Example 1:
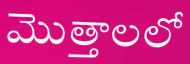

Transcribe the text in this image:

మొత్తాలలో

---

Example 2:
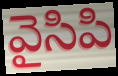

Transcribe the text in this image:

వైసిపి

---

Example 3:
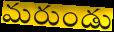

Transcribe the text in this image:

మరుండు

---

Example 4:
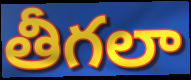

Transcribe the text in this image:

తీగలా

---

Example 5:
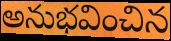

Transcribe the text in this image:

అనుభవించిన